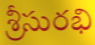
శ్రీసురభి